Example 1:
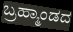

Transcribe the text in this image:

ಬ್ರಹ್ಮಾಂಡದ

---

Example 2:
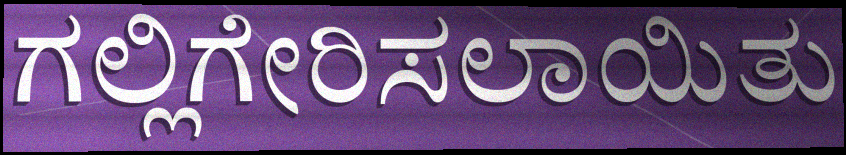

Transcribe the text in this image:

ಗಲ್ಲಿಗೇರಿಸಲಾಯಿತು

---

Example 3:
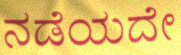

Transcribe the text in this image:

ನಡೆಯದೇ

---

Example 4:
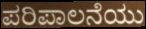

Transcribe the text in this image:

ಪರಿಪಾಲನೆಯು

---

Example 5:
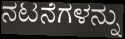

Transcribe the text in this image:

ನಟನೆಗಳನ್ನು